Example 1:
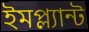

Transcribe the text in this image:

ইমপ্ল্যান্ট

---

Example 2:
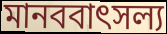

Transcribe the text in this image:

মানববাৎসল্য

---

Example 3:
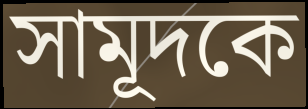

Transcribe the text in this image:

সামূদকে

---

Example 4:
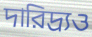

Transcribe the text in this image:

দারিদ্র্যও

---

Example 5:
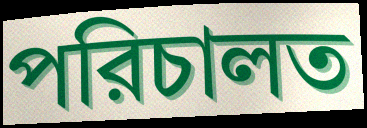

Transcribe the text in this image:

পরিচালত